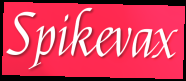
Spikevax